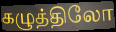
கழுத்திலோ